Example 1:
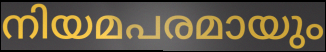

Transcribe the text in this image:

നിയമപരമായും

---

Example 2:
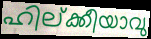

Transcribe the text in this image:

ഹില്ക്കീയാവു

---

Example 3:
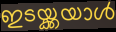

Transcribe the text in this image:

ഇടയ്ക്കയാൾ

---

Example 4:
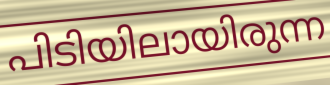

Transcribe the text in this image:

പിടിയിലായിരുന്ന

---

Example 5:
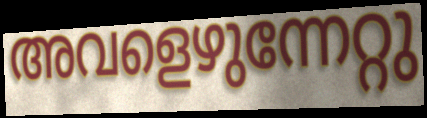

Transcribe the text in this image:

അവളെഴുന്നേറ്റു